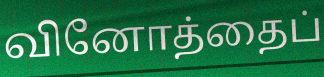
வினோத்தைப்